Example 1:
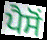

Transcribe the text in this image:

ਪੈਸੋਂ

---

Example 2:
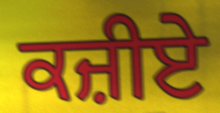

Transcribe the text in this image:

ਕਜ਼ੀਏ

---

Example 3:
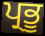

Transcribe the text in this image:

ਪ੍ਰਭੂ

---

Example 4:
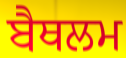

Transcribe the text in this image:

ਬੈਥਲਮ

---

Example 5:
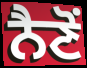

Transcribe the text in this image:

ਨੈਣੋਂ